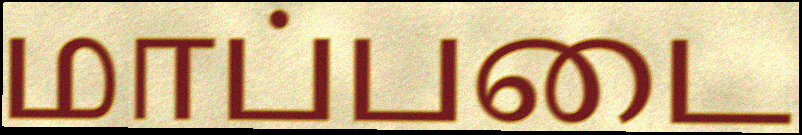
மாப்படை